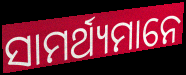
ସାମର୍ଥ୍ୟମାନେ